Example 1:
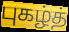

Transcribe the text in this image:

புகழ்த்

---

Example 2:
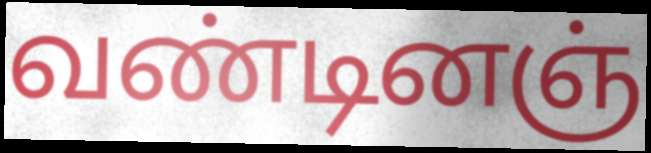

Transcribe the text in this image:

வண்டினஞ்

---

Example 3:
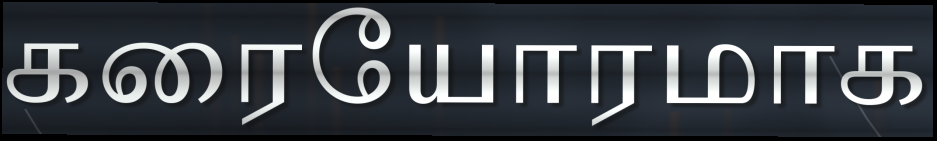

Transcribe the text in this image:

கரையோரமாக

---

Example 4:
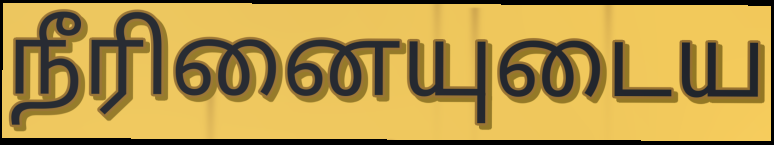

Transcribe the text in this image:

நீரினையுடைய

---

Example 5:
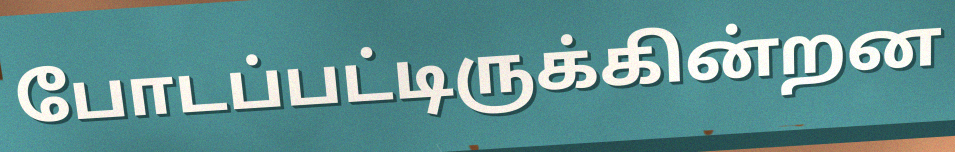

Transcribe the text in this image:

போடப்பட்டிருக்கின்றன